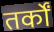
तर्कों